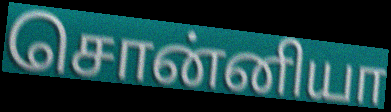
சொன்னியா